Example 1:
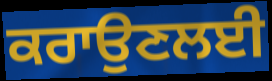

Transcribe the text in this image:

ਕਰਾਉਣਲਈ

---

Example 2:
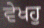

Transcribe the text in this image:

ਵੇਖਹੁ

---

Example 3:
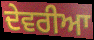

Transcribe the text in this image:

ਦੇਵਰੀਆ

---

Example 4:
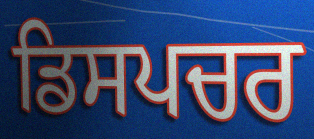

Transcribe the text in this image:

ਡਿਸਪਚਰ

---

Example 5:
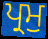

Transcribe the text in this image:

ਪ੍ਰਮੁ